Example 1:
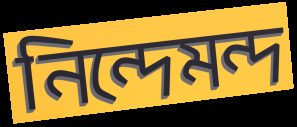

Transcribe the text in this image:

নিন্দেমন্দ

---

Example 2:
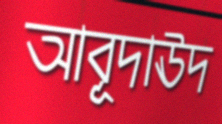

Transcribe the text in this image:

আবূদাঊদ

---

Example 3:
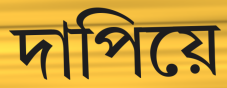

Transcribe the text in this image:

দাপিয়ে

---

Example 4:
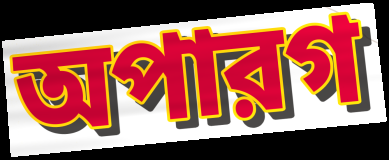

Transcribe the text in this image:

অপারগ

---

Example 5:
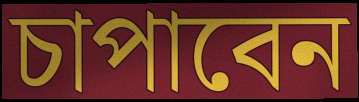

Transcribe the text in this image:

চাপাবেন